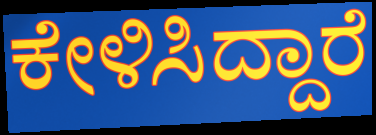
ಕೇಳಿಸಿದ್ದಾರೆ